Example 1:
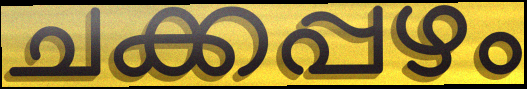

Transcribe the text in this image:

ചക്കപ്പഴം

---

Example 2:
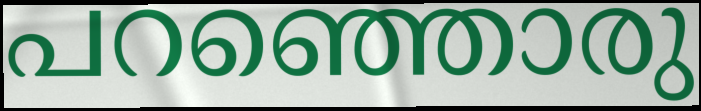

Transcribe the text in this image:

പറഞ്ഞൊരു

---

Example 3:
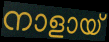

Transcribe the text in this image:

നാളായ്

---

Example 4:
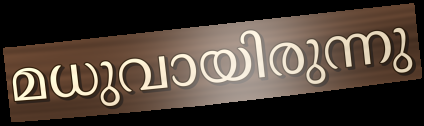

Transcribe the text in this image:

മധുവായിരുന്നു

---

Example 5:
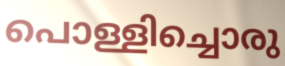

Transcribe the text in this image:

പൊള്ളിച്ചൊരു